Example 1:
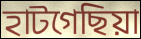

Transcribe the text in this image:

হাটগেছিয়া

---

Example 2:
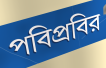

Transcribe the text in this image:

পবিপ্রবির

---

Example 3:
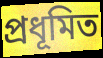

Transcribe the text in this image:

প্রধূমিত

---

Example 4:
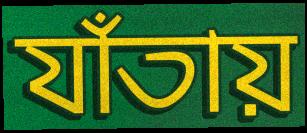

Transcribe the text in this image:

যাঁতায়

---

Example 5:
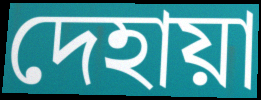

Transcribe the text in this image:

দেহায়া